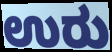
ಉರು